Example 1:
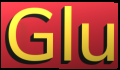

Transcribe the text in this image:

Glu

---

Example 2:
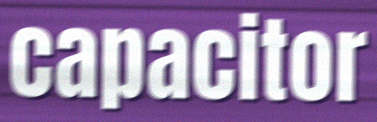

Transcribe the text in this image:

capacitor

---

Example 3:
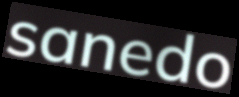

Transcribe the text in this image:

sanedo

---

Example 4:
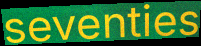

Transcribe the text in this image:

seventies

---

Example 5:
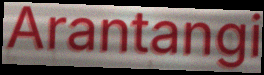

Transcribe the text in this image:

Arantangi